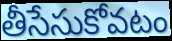
తీసేసుకోవటం